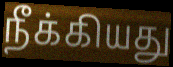
நீக்கியது